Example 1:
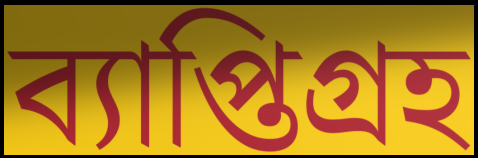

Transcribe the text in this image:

ব্যাপ্তিগ্রহ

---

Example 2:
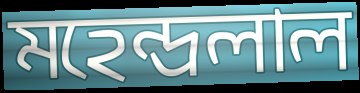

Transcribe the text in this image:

মহেন্দ্রলাল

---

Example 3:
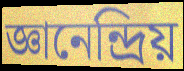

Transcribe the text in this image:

জ্ঞানেন্দ্রিয়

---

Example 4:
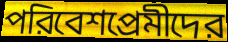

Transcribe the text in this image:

পরিবেশপ্রেমীদের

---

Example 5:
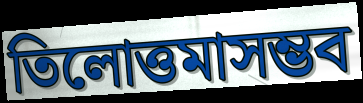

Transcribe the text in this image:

তিলোত্তমাসম্ভব